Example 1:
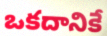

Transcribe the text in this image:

ఒకదానికే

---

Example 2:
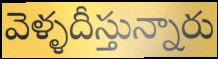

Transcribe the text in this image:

వెళ్ళదీస్తున్నారు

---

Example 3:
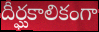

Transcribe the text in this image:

దీర్ఘకాలికంగా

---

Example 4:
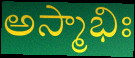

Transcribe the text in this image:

అస్మాభిః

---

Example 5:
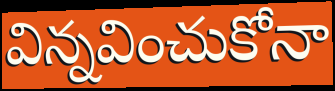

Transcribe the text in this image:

విన్నవించుకోనా